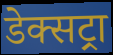
डेक्सट्रा